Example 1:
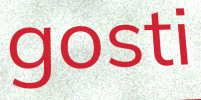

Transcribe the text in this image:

gosti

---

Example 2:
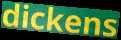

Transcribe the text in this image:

dickens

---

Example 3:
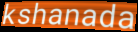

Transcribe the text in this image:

kshanada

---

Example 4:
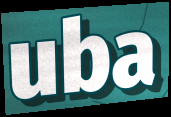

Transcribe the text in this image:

uba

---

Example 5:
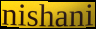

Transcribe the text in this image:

nishani